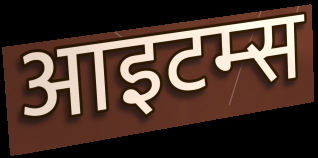
आइटम्स